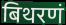
बिथरणं